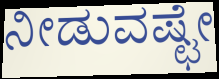
ನೀಡುವಷ್ಟೇ